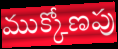
ముక్కోణపు